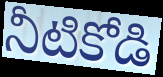
నీటికోడి